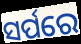
ସର୍ପରେ